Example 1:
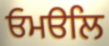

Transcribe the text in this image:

ਓਮੳਲਿ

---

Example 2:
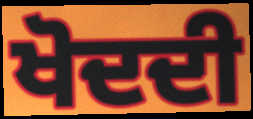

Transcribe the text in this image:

ਖੋਦਦੀ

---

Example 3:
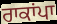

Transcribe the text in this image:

ਰਾਕਾਂਪਾ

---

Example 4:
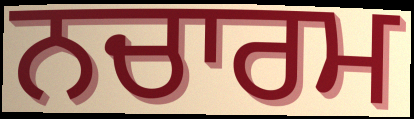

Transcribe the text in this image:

ਨਚਾਰਮ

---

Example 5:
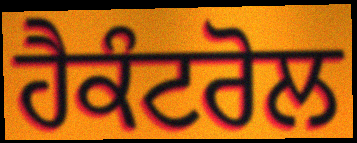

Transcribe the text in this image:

ਹੈਕੰਟਰੋਲ